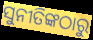
ସୁନୀତିଙ୍କଠାରୁ